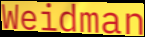
Weidman